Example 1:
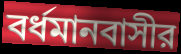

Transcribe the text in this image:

বর্ধমানবাসীর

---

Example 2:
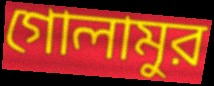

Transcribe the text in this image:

গোলামুর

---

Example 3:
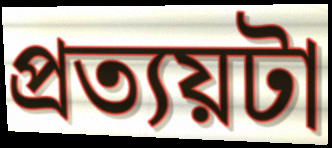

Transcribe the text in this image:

প্রত্যয়টা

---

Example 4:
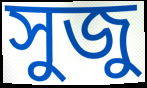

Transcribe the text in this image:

সুজু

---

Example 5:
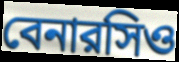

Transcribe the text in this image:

বেনারসিও